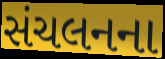
સંચલનના